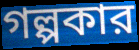
গল্পকার